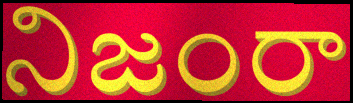
నిజంరా